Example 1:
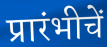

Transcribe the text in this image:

प्रारंभीचें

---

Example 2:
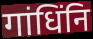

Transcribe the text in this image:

गांधिंनि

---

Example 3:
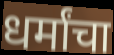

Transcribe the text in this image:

धर्मांचा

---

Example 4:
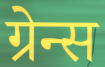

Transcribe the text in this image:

ग्रेन्स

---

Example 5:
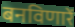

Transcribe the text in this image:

बनविणारें